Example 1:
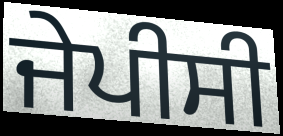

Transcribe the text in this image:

ਜੇਪੀਸੀ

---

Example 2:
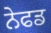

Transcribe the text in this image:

ਨੇਫਡ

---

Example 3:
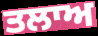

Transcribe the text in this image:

ਤਲਾਅ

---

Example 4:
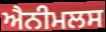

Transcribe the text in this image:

ਐਨੀਮਲਸ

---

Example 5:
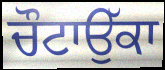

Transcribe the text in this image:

ਚੌਟਾਉੱਕਾ